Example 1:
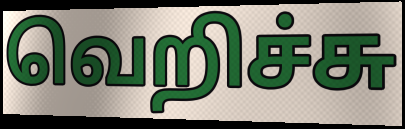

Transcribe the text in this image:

வெறிச்சு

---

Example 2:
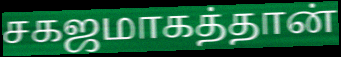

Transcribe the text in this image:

சகஜமாகத்தான்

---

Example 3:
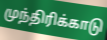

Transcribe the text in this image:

முந்திரிக்காடு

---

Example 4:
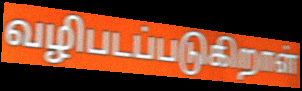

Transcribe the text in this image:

வழிபடப்படுகிறாள்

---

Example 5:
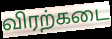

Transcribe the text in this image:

விரற்கடை